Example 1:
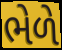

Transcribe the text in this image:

ભેળે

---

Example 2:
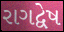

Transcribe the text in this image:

રાગદ્વેષ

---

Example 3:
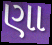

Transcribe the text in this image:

ણા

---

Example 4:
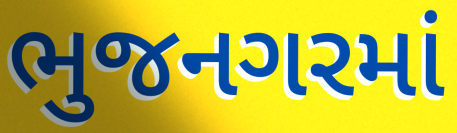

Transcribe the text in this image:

ભુજનગરમાં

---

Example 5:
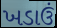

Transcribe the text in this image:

ખડાઉં